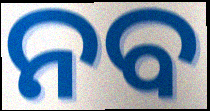
ନବ